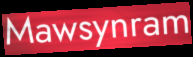
Mawsynram